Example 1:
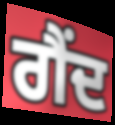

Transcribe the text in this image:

ਗੈਂਦ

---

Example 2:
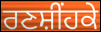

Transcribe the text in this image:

ਰਣਸ਼ੀਂਹਕੇ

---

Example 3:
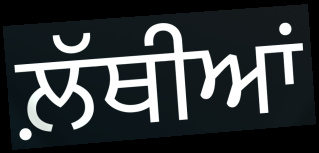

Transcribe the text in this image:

ਲ਼ੱਥੀਆਂ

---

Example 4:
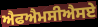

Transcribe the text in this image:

ਐਫਐਮਸੀਐਸਏ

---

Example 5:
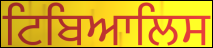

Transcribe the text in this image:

ਟਿਬਿਆਲਿਸ